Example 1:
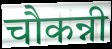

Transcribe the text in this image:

चौकन्नी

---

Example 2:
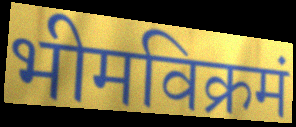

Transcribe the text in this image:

भीमविक्रमं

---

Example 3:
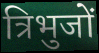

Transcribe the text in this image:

त्रिभुजों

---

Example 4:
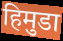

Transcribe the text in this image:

हिमुडा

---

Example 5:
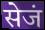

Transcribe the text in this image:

सेजं